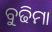
ବୁଢିମା